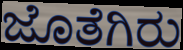
ಜೊತೆಗಿರು